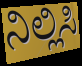
ನಿಲ್ಲಿಸಿ